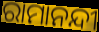
ରାମାନନ୍ଦୀ